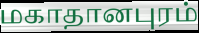
மகாதானபுரம்